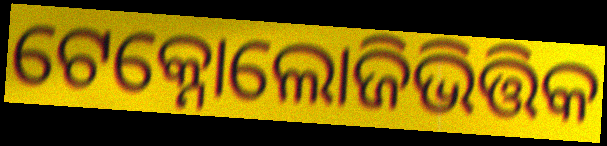
ଟେକ୍ନୋଲୋଜିଭିତ୍ତିକ